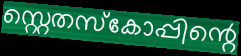
സ്റ്റെതസ്കോപ്പിന്റെ